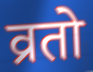
व्रतो